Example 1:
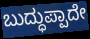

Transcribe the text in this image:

ಬುದ್ಧುಪ್ಪಾದೇ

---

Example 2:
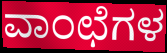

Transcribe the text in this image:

ವಾಂಛೆಗಳ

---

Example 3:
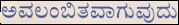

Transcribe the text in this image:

ಅವಲಂಬಿತವಾಗುವುದು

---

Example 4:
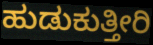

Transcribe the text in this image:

ಹುಡುಕುತ್ತೀರಿ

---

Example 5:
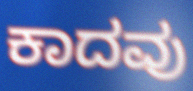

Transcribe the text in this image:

ಕಾದವು